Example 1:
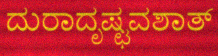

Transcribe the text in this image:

ದುರಾದೃಷ್ಟವಶಾತ್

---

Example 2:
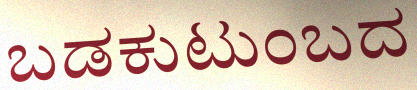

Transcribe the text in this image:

ಬಡಕುಟುಂಬದ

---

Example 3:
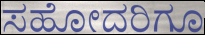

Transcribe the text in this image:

ಸಹೋದರಿಗೂ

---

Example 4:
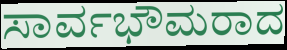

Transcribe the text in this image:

ಸಾರ್ವಭೌಮರಾದ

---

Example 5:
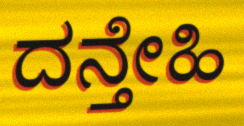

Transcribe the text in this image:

ದನ್ತೇಹಿ